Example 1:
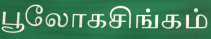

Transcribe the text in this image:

பூலோகசிங்கம்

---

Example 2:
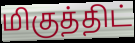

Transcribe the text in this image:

மிகுத்திட்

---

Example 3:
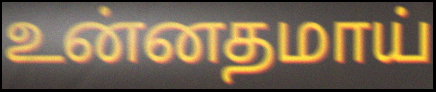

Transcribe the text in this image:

உன்னதமாய்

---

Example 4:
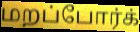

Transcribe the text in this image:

மறப்போர்க்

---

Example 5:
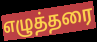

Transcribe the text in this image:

எழுத்தரை